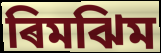
ৰিমঝিম